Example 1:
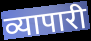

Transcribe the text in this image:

व्यापारी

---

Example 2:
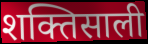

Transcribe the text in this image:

शक्तिसाली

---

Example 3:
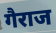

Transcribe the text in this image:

गैराज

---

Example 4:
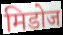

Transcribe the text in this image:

मिडोज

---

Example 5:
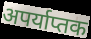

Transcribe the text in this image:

अपर्याप्तक